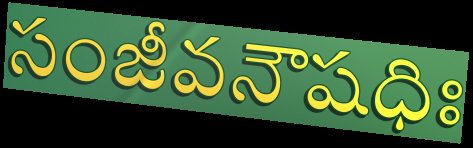
సంజీవనౌషధిః